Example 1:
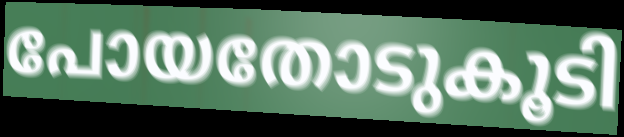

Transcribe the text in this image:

പോയതോടുകൂടി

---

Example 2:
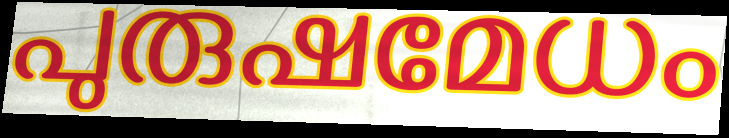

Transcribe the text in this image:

പുരുഷമേധം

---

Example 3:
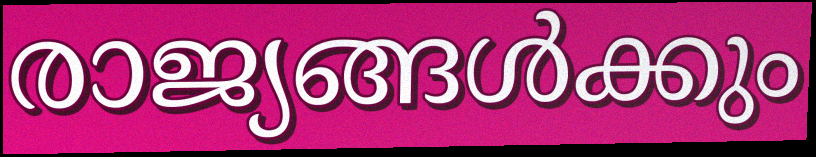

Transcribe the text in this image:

രാജ്യങ്ങൾക്കും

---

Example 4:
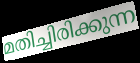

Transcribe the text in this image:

മതിച്ചിരിക്കുന്ന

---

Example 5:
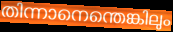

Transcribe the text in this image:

തിന്നാനെന്തെങ്കിലും